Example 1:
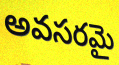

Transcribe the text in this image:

అవసరమై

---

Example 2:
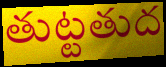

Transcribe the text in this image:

తుట్టతుద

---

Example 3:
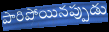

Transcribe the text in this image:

పారిపోయినప్పుడు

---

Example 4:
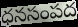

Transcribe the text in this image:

ధనసంపద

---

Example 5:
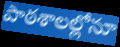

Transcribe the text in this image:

పాఠశాలల్లోనూ